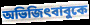
অভিজিৎবাবুকে